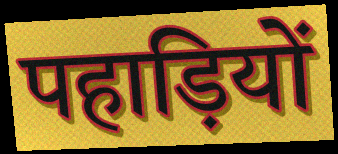
पहाड़ियों